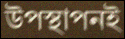
উপস্থাপনই